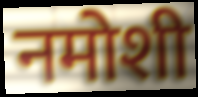
नमोशी